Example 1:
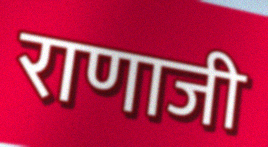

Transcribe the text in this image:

राणाजी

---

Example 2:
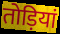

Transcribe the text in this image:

तोड़ियां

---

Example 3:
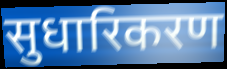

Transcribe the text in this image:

सुधारिकरण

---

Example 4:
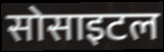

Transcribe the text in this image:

सोसाइटल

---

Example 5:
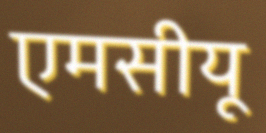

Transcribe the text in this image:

एमसीयू